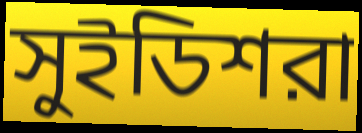
সুইডিশরা